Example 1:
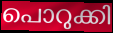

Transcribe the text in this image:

പൊറുക്കി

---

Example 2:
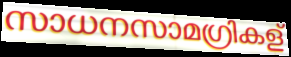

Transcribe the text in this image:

സാധനസാമഗ്രികള്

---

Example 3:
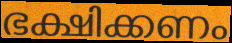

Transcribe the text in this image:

ഭക്ഷിക്കണം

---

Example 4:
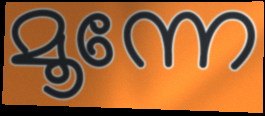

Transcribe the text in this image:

മൂന്നേ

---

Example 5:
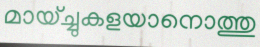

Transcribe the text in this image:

മായ്ച്ചുകളയാനൊത്തു